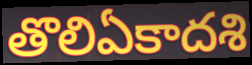
తొలిఏకాదశి